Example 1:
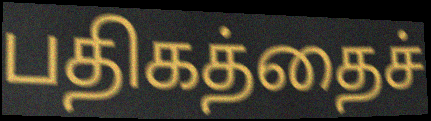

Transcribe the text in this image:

பதிகத்தைச்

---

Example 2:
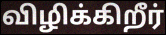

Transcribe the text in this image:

விழிக்கிறீர்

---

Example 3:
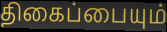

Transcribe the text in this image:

திகைப்பையும்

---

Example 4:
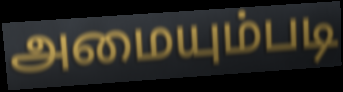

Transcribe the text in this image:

அமையும்படி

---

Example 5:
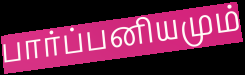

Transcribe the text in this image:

பார்ப்பனியமும்